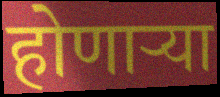
होणाऱ्या